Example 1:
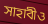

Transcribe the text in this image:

সাহাবীও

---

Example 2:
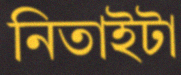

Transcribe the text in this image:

নিতাইটা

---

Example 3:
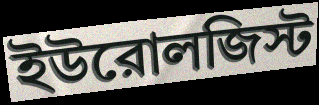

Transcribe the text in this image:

ইউরোলজিস্ট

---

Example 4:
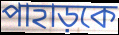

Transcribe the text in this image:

পাহাড়কে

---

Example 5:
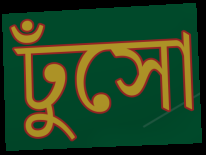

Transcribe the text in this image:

ঢুঁসো